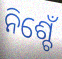
ନିଶ୍ଚେଁ